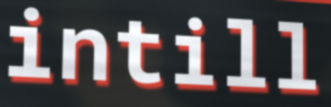
intill